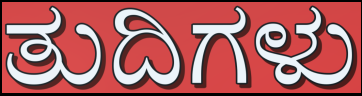
ತುದಿಗಳು